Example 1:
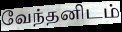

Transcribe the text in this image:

வேந்தனிடம்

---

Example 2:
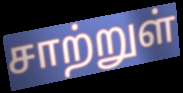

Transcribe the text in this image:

சாற்றுள்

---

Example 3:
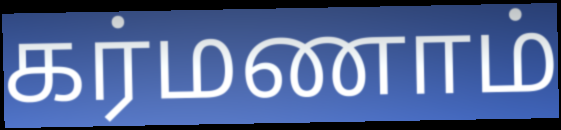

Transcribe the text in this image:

கர்மணாம்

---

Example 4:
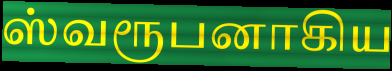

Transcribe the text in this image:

ஸ்வரூபனாகிய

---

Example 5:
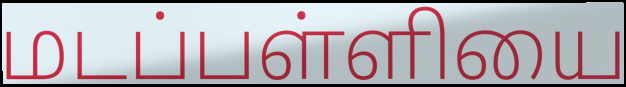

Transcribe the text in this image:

மடப்பள்ளியை